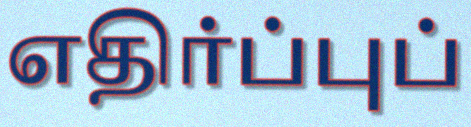
எதிர்ப்புப்